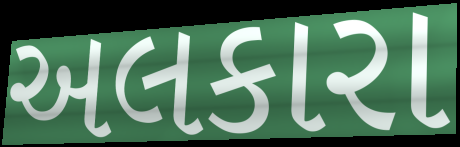
અલકારા